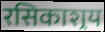
रसिकाश्रय